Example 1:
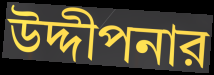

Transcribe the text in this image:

উদ্দীপনার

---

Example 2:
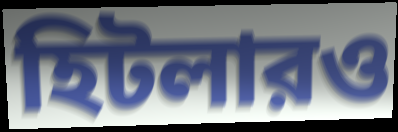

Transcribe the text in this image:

হিটলারও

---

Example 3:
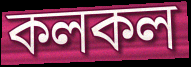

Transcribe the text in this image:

কলকল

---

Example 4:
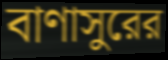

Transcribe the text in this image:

বাণাসুরের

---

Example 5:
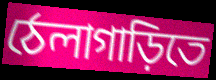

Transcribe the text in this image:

ঠেলাগাড়িতে